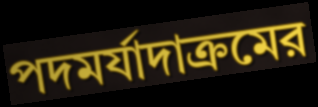
পদমর্যাদাক্রমের